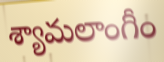
శ్యామలాంగీం